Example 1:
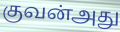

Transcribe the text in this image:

குவன்அது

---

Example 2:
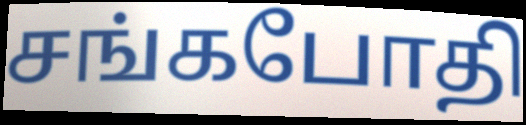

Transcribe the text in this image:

சங்கபோதி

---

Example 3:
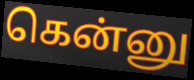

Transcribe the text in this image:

கென்னு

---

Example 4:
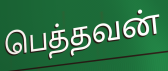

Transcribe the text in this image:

பெத்தவன்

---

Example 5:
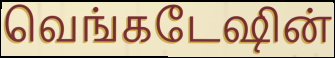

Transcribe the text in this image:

வெங்கடேஷின்